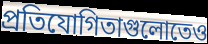
প্রতিযোগিতাগুলোতেও